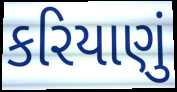
કરિયાણું